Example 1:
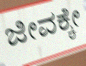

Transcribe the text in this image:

ಜೀವಕ್ಕೇ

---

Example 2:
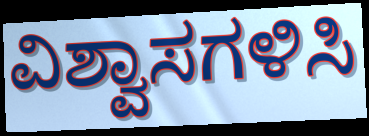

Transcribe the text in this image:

ವಿಶ್ವಾಸಗಳಿಸಿ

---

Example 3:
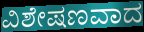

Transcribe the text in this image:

ವಿಶೇಷಣವಾದ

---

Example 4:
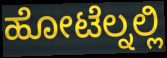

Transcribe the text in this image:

ಹೋಟೆಲ್ನಲ್ಲಿ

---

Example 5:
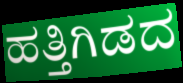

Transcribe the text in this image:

ಹತ್ತಿಗಿಡದ